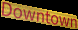
Downtown